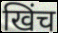
खिंच